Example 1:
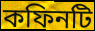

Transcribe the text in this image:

কফিনটি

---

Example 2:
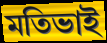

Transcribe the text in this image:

মতিভাই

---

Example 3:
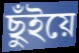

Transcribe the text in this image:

ছুঁইয়ে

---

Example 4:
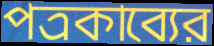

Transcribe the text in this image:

পত্রকাব্যের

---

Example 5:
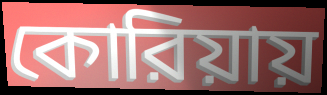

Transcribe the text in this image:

কোরিয়ায়